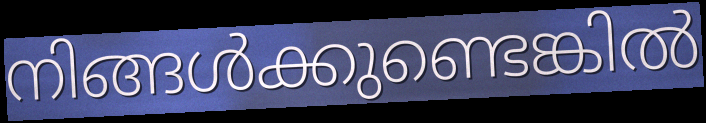
നിങ്ങൾക്കുണ്ടെങ്കിൽ